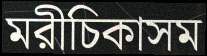
মরীচিকাসম